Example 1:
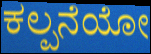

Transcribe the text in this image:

ಕಲ್ಪನೆಯೋ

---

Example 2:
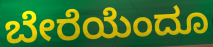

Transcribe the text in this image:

ಬೇರೆಯೆಂದೂ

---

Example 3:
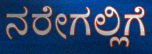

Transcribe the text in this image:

ನರೇಗಲ್ಲಿಗೆ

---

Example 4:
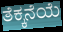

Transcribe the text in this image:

ತೆಕ್ಕನೆಯೆ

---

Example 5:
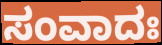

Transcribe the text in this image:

ಸಂವಾದಃ